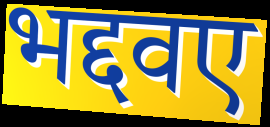
भद्दवए